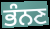
ਭੰਨਣ